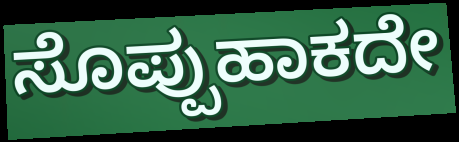
ಸೊಪ್ಪುಹಾಕದೇ